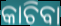
କାଚିବା